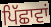
ਪਿੱਛਾਵਾਂ